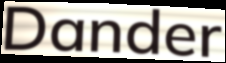
Dander